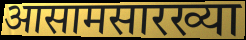
आसामसारख्या